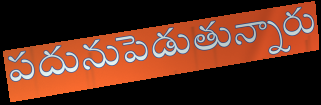
పదునుపెడుతున్నారు